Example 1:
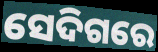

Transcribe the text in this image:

ସେଦିଗରେ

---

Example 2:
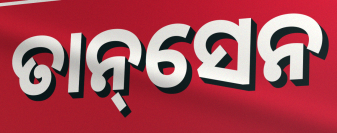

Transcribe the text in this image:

ତାନ୍‌ସେନ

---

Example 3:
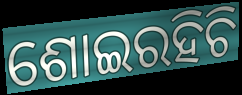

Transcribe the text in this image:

ଶୋଇରହିଚି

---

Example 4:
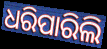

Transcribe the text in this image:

ଧରିପାରିଲି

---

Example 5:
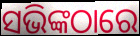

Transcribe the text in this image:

ସଭିଙ୍କଠାରେ